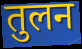
तुलन